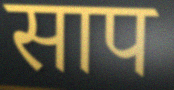
साप